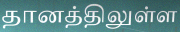
தானத்திலுள்ள